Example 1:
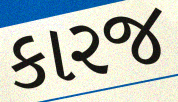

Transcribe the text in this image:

કારજ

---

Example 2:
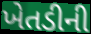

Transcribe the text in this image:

ખેતડીની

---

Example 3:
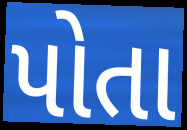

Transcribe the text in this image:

પોતા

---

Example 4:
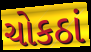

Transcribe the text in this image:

ચોકઠાં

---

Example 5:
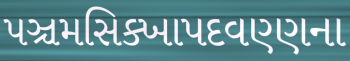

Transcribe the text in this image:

પઞ્ચમસિક્ખાપદવણ્ણના